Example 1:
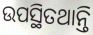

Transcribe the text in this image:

ଉପସ୍ଥିତଥାନ୍ତି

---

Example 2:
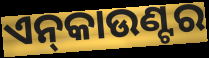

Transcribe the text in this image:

ଏନ୍‌କାଉଣ୍ଟର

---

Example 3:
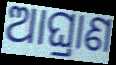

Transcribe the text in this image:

ଆଘ୍ରାଣ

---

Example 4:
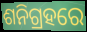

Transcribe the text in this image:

ଶନିଗ୍ରହରେ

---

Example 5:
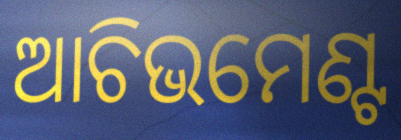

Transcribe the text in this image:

ଆଚିଭମେଣ୍ଟ